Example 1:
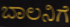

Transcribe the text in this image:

ಬಾಲನಿಗೆ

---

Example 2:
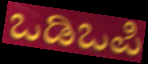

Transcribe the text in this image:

ಒಡಿಒಪಿ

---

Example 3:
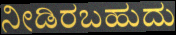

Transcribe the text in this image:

ನೀಡಿರಬಹುದು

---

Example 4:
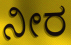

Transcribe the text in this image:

ನೀರ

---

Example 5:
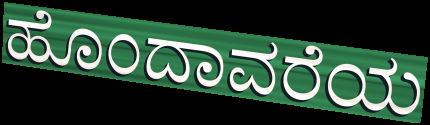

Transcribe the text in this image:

ಹೊಂದಾವರೆಯ